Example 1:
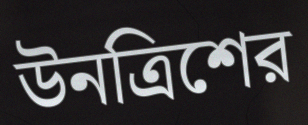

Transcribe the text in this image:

উনত্রিশের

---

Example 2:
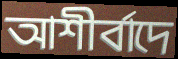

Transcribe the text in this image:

আশীর্বাদে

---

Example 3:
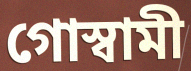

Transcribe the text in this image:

গোস্বামী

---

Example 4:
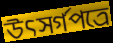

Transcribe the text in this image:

উৎসর্গপত্রে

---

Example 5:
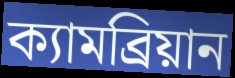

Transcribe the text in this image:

ক্যামব্রিয়ান